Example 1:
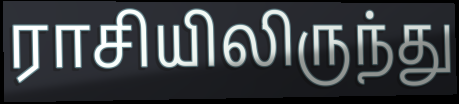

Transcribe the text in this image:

ராசியிலிருந்து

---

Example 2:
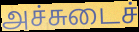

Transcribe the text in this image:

அச்சுடைச்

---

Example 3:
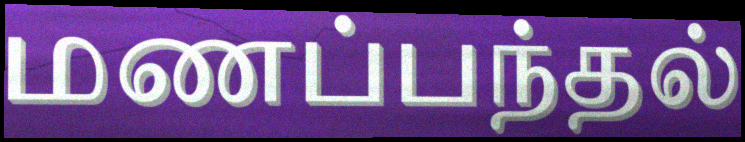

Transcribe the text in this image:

மணப்பந்தல்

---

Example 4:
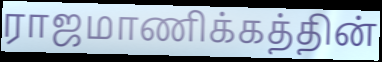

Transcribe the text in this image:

ராஜமாணிக்கத்தின்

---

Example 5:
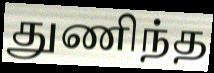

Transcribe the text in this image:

துணிந்த